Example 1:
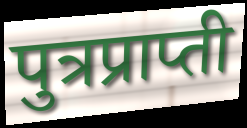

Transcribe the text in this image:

पुत्रप्राप्ती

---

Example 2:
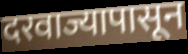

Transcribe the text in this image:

दरवाज्यापासून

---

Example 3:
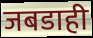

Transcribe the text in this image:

जबडाही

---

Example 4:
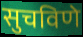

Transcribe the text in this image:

सुचविणे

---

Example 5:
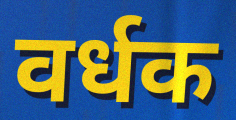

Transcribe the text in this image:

वर्धक